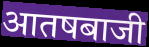
आतषबाजी